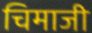
चिमाजी